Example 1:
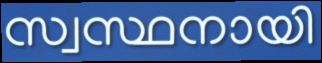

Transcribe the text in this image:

സ്വസ്ഥനായി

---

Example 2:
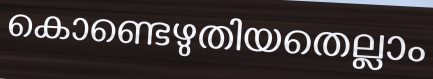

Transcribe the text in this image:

കൊണ്ടെഴുതിയതെല്ലാം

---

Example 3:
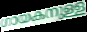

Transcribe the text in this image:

ഗായകനുള്ള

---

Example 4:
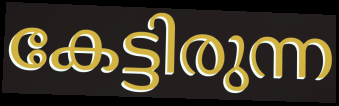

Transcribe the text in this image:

കേട്ടിരുന്ന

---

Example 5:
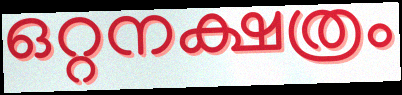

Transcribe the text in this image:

ഒറ്റനക്ഷത്രം